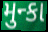
મુન્કા